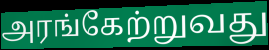
அரங்கேற்றுவது